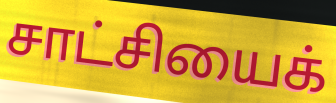
சாட்சியைக்